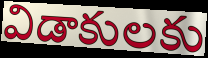
విడాకులకు